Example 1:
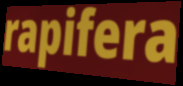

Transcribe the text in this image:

rapifera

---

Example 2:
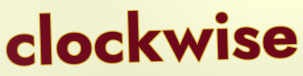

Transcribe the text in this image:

clockwise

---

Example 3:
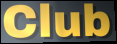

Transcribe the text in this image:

Club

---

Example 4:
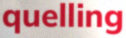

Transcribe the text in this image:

quelling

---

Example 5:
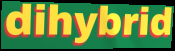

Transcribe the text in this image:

dihybrid